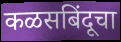
कळसबिंदूचा